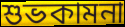
শুভকামনা